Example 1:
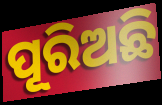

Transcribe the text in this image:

ପୂରିଅଛି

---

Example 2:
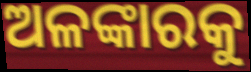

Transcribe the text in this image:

ଅଳଙ୍କାରକୁ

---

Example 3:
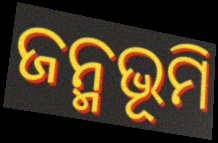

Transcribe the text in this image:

ଜନ୍ମଭୂମି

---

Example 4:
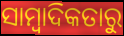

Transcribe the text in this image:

ସାମ୍ବାଦିକତାରୁ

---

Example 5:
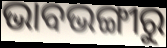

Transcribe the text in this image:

ଭାବଭଙ୍ଗୀରୁ